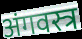
अंगवस्त्र